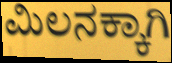
ಮಿಲನಕ್ಕಾಗಿ